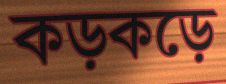
কড়কড়ে